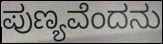
ಪುಣ್ಯವೆಂದನು